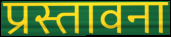
प्रस्‍तावना